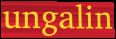
ungalin